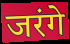
जरंगे